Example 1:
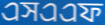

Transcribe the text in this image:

এসএএফ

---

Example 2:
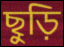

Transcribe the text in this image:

ছুড়ি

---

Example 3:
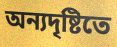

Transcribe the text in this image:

অন্যদৃষ্টিতে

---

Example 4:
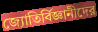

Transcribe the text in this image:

জ্যোতির্বিজ্ঞানীদের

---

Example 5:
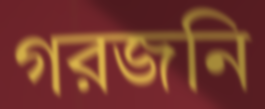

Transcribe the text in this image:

গরজনি